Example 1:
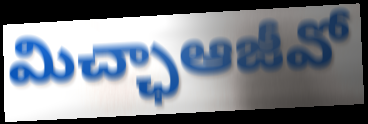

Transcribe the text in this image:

మిచ్ఛాఆజీవో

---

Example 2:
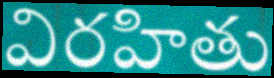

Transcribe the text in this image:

విరహితు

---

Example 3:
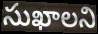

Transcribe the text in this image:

సుఖాలని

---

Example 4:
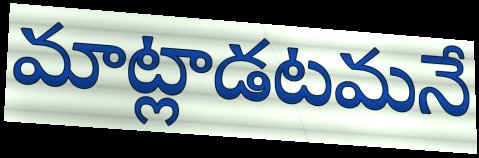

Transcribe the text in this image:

మాట్లాడటమనే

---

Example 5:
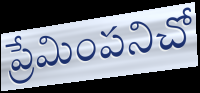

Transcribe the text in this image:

ప్రేమింపనిచో